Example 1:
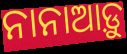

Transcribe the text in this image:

ନାନାଆଡ଼ୁ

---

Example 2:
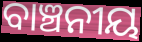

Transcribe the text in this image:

ବାଞ୍ଚନୀୟ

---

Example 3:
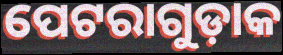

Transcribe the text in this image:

ପେଟରାଗୁଡ଼ାକ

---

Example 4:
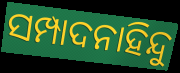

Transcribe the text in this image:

ସମ୍ପାଦନାହିନ୍ଦୁ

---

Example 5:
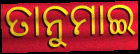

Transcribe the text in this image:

ତାନୁମାଇ